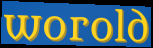
worold